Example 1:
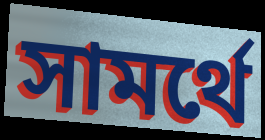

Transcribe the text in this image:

সামর্থে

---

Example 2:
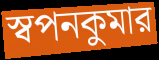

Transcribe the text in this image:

স্বপনকুমার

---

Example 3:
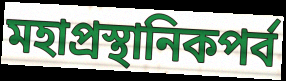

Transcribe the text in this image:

মহাপ্রস্থানিকপর্ব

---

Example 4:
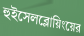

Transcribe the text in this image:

হুইসেলব্লোয়িংয়ের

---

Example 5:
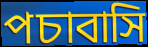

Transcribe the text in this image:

পচাবাসি